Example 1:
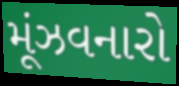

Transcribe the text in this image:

મૂંઝવનારો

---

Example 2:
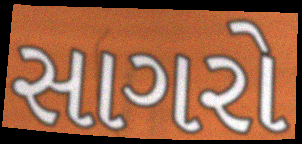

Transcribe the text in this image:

સાગરો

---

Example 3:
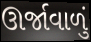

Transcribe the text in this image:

ઊર્જાવાળું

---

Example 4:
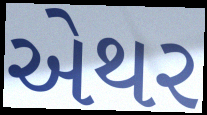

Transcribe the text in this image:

એથર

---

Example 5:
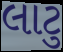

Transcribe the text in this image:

લાટુ